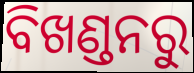
ବିଖଣ୍ଡନରୁ